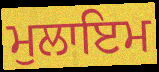
ਮੁਲਾਇਮ